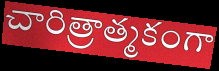
చారిత్రాత్మకంగా